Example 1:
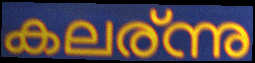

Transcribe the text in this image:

കലര്ന്നു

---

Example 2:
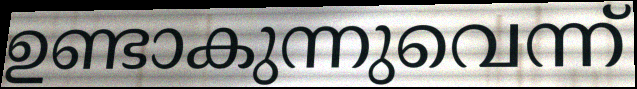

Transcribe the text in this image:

ഉണ്ടാകുന്നുവെന്ന്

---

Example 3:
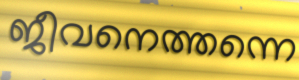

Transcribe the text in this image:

ജീവനെത്തന്നെ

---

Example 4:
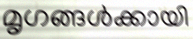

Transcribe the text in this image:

മൃഗങ്ങൾക്കായി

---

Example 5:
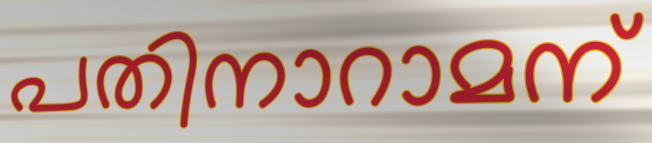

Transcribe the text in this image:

പതിനാറാമന്